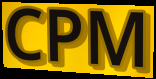
CPM